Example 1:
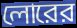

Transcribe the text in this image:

লোরের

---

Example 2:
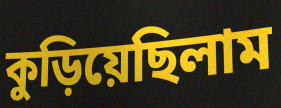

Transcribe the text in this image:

কুড়িয়েছিলাম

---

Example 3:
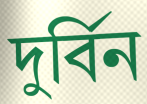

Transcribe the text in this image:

দুর্বিন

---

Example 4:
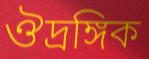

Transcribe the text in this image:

ঔদ্রঙ্গিক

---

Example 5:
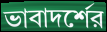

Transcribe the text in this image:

ভাবাদর্শের